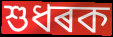
শুধৰক